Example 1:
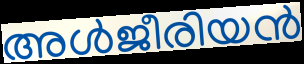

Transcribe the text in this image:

അൾജീരിയൻ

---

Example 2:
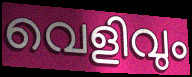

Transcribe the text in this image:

വെളിവും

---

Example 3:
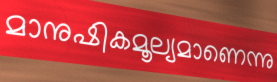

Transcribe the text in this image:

മാനുഷികമൂല്യമാണെന്നു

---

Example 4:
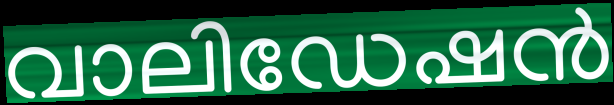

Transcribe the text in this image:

വാലിഡേഷൻ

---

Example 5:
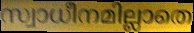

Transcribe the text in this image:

സ്വാധീനമില്ലാതെ